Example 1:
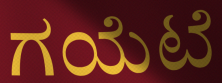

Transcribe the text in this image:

ಗಯೆಟೆ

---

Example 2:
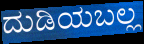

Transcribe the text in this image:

ದುಡಿಯಬಲ್ಲ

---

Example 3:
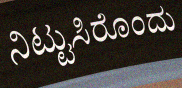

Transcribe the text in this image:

ನಿಟ್ಟುಸಿರೊಂದು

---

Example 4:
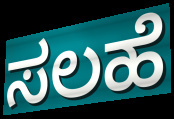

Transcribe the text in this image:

ಸಲಹೆ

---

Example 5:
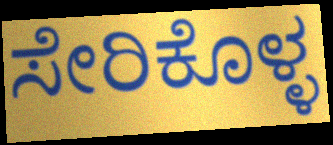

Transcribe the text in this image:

ಸೇರಿಕೊಳ್ಳ